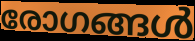
രോഗങ്ങൾ